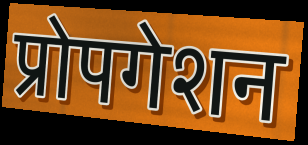
प्रोपगेशन